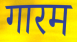
गारम